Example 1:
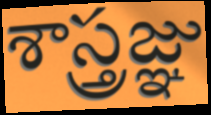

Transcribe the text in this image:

శాస్త్రజ్ఞు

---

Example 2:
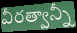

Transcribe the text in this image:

వీరత్వాన్నీ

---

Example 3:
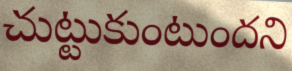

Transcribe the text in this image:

చుట్టుకుంటుందని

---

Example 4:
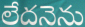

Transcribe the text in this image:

లేదనెను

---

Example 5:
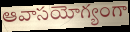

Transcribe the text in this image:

ఆవాసయోగ్యంగా